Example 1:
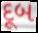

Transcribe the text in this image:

દૂબ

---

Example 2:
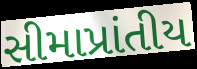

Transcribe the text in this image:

સીમાપ્રાંતીય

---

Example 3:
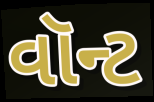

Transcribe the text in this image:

વૉન્ટ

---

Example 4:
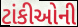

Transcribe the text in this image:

ટાંકીઓની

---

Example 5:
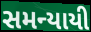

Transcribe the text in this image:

સમન્યાયી